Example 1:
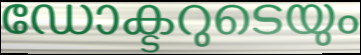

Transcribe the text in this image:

ഡോക്ടറുടെയും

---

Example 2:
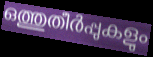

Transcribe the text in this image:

ഒത്തുതീർപ്പുകളും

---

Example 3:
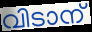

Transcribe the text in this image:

വിടാന്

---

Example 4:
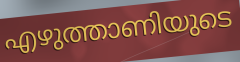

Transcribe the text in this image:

എഴുത്താണിയുടെ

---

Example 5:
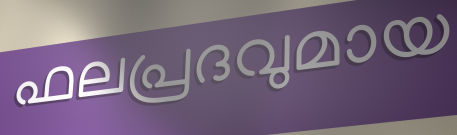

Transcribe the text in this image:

ഫലപ്രദവുമായ